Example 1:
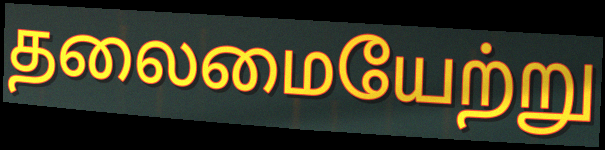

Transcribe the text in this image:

தலைமையேற்று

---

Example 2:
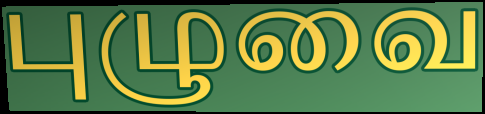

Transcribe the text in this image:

புழுவை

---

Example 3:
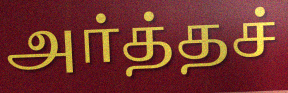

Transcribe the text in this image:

அர்த்தச்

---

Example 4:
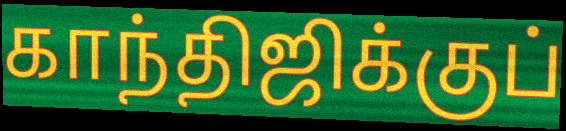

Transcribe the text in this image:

காந்திஜிக்குப்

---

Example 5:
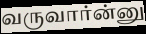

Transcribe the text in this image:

வருவார்ன்னு